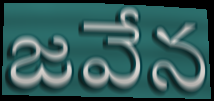
జవేన